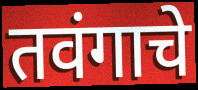
तवंगाचे